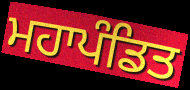
ਮਹਾਪੰਡਿਤ